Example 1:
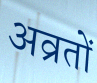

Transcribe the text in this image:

अव्रतों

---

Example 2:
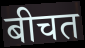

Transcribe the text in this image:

बीचत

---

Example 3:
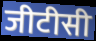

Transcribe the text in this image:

जीटीसी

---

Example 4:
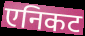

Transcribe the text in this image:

एनिकट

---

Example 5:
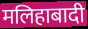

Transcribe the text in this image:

मलिहाबादी